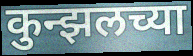
कुन्झलच्या